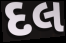
દલ